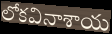
లోకవినాశాయ